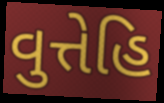
વુત્તેહિ